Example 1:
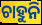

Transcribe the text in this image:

ଚାହୁନି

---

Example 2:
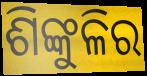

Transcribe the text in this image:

ଶିଙ୍କୁଳିର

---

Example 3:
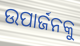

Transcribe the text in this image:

ଉପାର୍ଜନକୁ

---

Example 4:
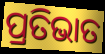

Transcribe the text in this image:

ପ୍ରତିଭାତ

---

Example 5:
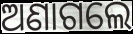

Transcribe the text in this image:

ଅଣାଗଲେ